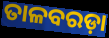
ତାଳବରଡ଼ା